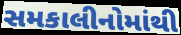
સમકાલીનોમાંથી